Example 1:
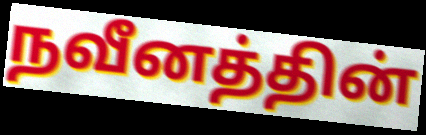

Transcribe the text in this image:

நவீனத்தின்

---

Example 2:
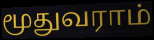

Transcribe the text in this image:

மூதுவராம்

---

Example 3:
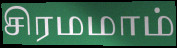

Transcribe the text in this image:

சிரமமாம்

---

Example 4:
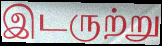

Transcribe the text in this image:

இடருற்று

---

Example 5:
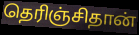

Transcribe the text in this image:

தெரிஞ்சிதான்